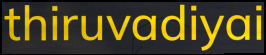
thiruvadiyai